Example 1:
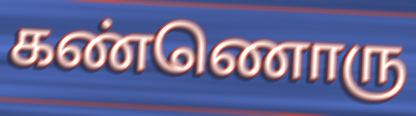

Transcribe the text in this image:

கண்ணொரு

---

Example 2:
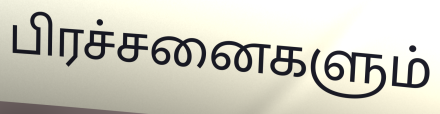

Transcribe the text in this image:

பிரச்சனைகளும்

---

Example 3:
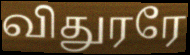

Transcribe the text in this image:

விதுரரே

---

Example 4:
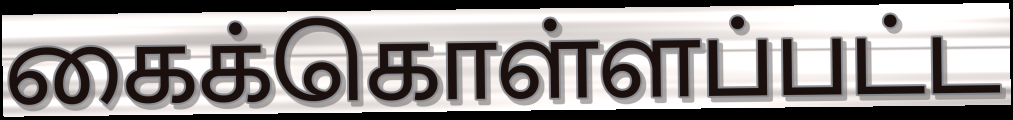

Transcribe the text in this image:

கைக்கொள்ளப்பட்ட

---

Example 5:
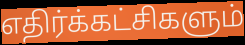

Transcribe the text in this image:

எதிர்க்கட்சிகளும்